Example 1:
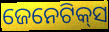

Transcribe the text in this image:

ଜେନେଟିକ୍‌ସ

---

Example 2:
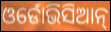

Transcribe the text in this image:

ଓର୍ଡୋଭିସିଆନ୍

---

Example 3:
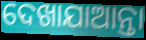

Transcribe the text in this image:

ଦେଖାଯାଆନ୍ତା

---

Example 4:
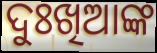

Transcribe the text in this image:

ଦୁଃଖିଆଙ୍କ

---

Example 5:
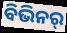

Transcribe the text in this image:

ବିଭିନର୍